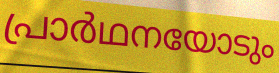
പ്രാർഥനയോടും